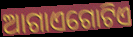
ଆଗାଏଗୋଟିଏ